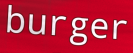
burger